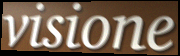
visione